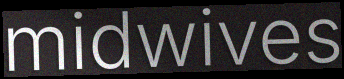
midwives